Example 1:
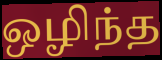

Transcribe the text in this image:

ஒழிந்த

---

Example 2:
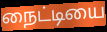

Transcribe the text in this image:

நைட்டியை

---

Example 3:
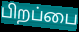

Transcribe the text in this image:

பிறப்பை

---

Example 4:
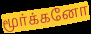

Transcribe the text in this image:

மூர்க்கனோ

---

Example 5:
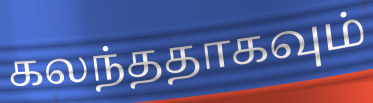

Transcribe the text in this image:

கலந்ததாகவும்